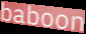
baboon